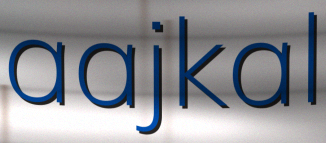
aajkal